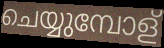
ചെയ്യുമ്പോള്